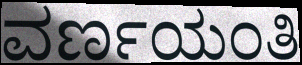
ವರ್ಣಯಂತಿ